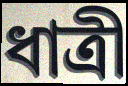
ধাত্ৰী